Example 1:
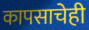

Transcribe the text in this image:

कापसाचेही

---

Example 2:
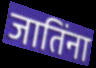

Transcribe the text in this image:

जातिंना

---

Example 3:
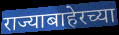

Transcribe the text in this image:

राज्याबाहेरच्या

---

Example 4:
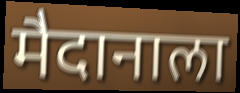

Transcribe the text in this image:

मैदानाला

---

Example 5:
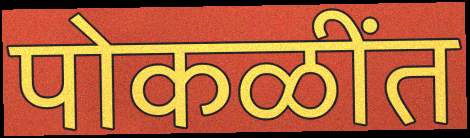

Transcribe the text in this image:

पोकळींत